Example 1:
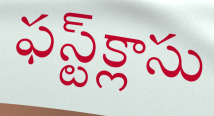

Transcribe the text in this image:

ఫస్ట్‌క్లాసు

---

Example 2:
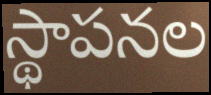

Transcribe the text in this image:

స్థాపనల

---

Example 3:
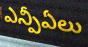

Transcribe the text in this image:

ఎన్పీఏలు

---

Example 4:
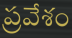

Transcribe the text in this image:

ప్రవేశం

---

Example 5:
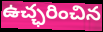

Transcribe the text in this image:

ఉచ్ఛరించిన